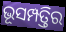
ଭୂସମ୍ପତ୍ତିର